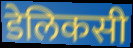
डेलिकसी